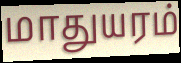
மாதுயரம்